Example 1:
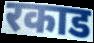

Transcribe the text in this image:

रकाड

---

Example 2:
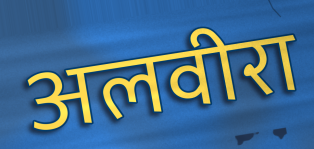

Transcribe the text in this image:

अलवीरा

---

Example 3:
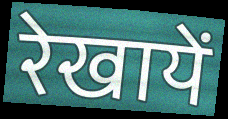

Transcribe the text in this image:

रेखायें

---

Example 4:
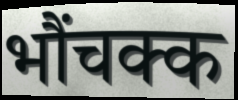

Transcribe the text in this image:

भौंचक्क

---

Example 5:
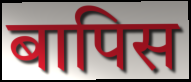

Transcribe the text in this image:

बापिस